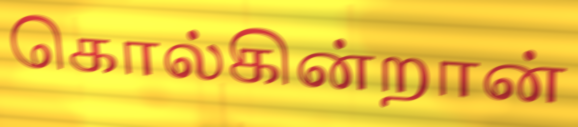
கொல்கின்றான்